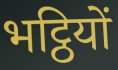
भट्ठियों